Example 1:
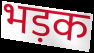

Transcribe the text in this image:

भड़क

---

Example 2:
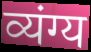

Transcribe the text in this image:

व्यंग्य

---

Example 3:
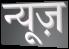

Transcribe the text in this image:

न्यूज़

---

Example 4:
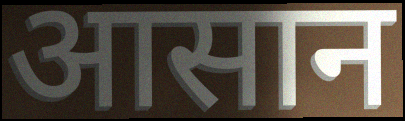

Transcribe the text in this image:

आसान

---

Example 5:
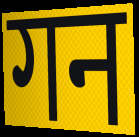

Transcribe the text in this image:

गन